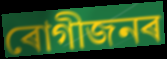
ৰোগীজনৰ